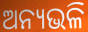
ଅନ୍ୟଭଳି